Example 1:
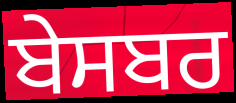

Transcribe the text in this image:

ਬੇਸਬਰ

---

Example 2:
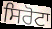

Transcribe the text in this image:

ਸਿਰੋਟਾ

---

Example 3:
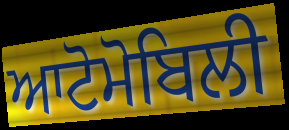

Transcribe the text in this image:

ਆਟੋਮੋਬਿਲੀ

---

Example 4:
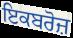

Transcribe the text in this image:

ਇਕਬਰੋਜ਼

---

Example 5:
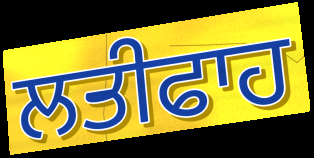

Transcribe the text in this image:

ਲਤੀਫਾਹ